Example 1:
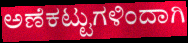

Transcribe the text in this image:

ಅಣೆಕಟ್ಟುಗಳಿಂದಾಗಿ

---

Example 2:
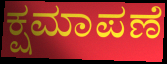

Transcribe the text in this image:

ಕ್ಷಮಾಪಣೆ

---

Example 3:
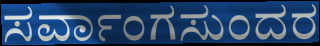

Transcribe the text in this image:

ಸರ್ವಾಂಗಸುಂದರ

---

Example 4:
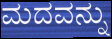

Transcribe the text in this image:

ಮದವನ್ನು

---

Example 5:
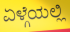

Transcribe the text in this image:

ಏಳ್ಗೆಯಲ್ಲಿ